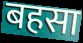
बहसा